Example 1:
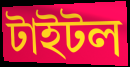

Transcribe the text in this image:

টাইটল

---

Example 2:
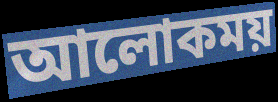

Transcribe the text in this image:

আলোকময়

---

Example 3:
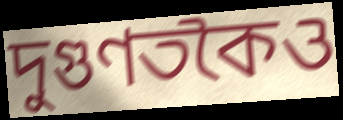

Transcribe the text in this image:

দুগুণতকৈও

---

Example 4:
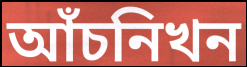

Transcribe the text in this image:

আঁচনিখন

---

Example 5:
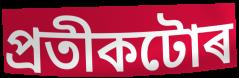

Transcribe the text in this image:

প্ৰতীকটোৰ